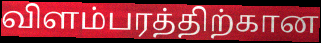
விளம்பரத்திற்கான